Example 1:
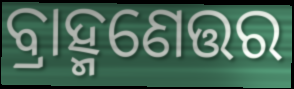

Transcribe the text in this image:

ବ୍ରାହ୍ମଣେତ୍ତର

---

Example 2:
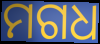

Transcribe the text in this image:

ମଗଧ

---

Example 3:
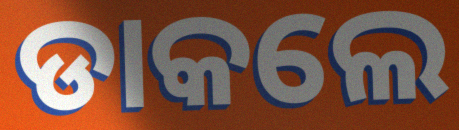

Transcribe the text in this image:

ଡାକଲେ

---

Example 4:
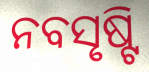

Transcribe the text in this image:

ନବସୃଷ୍ଟି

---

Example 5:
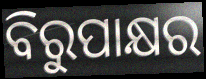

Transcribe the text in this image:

ବିରୁପାକ୍ଷର